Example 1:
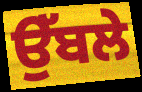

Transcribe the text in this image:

ਉੱਬਲੇ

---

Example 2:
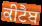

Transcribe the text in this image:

ਕੀਟੈਬ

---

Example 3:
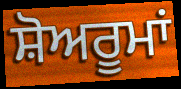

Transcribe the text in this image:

ਸ਼ੋਅਰੂਮਾਂ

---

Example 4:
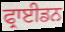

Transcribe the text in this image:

ਫ੍ਰਾਈਡਨ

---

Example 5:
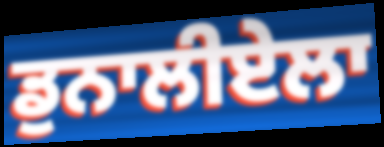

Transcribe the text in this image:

ਡੁਨਾਲੀਏਲਾ